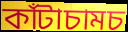
কাঁটাচামচ